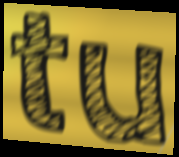
tu